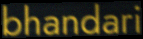
bhandari